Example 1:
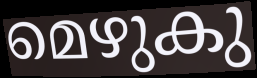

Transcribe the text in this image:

മെഴുകു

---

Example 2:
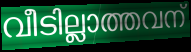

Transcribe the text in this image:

വീടില്ലാത്തവന്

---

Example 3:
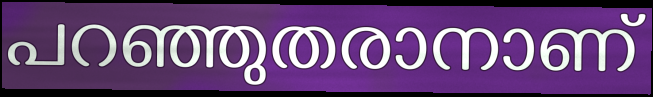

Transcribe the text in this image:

പറഞ്ഞുതരാനാണ്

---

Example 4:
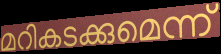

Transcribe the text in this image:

മറികടക്കുമെന്ന്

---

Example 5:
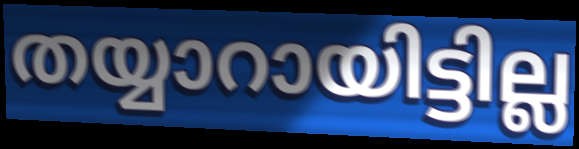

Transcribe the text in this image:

തയ്യാറായിട്ടില്ല